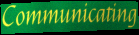
Communicating